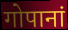
गोपानां